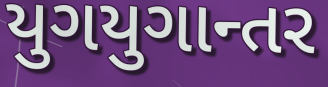
યુગયુગાન્તર